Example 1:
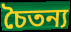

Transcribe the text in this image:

চৈতন্য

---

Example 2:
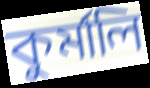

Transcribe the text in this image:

কুৰ্মালি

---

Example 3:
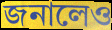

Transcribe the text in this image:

জনালেও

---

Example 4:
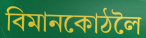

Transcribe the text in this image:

বিমানকোঠলৈ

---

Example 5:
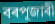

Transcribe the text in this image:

বৰপূজাৰী